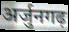
अर्जुनगढ़